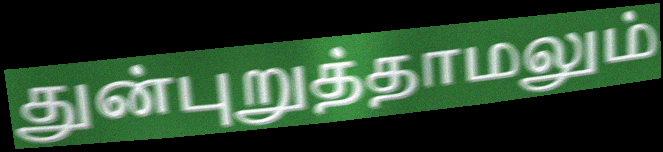
துன்புறுத்தாமலும்